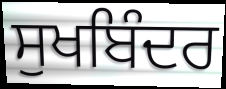
ਸੁਖਬਿੰਦਰ